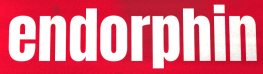
endorphin